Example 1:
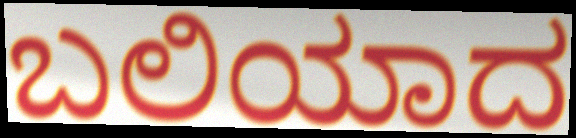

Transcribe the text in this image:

ಬಲಿಯಾದ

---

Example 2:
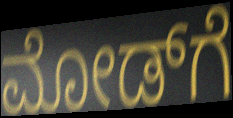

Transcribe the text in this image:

ಮೋಡ್‌ಗೆ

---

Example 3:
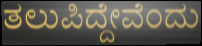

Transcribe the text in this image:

ತಲುಪಿದ್ದೇವೆಂದು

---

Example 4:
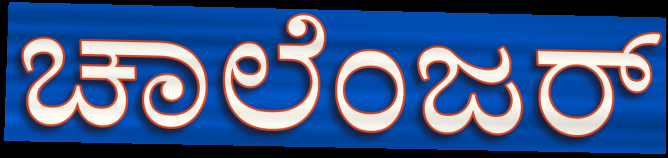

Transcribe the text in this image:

ಚಾಲೆಂಜರ್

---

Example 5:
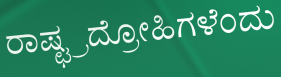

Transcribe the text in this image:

ರಾಷ್ಟ್ರದ್ರೋಹಿಗಳೆಂದು